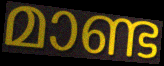
മാണ്ട